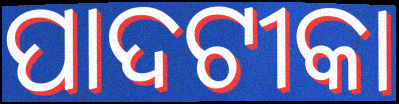
ପାଦଟୀକା